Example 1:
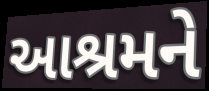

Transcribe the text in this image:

આશ્રમને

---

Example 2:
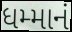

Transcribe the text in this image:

ધમ્માનં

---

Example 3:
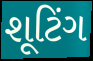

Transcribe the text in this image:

શૂટિંગ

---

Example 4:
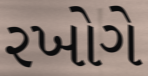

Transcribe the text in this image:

રખોગે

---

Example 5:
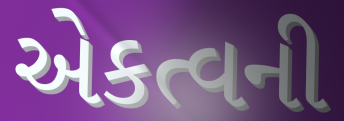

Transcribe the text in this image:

એકત્વની